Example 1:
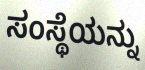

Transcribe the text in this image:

ಸಂಸ್ಥೆಯನ್ನು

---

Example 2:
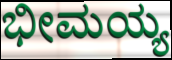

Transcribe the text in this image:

ಭೀಮಯ್ಯ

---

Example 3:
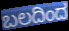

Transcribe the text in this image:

ಬಲದಿಂದ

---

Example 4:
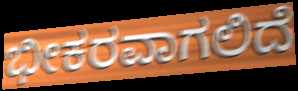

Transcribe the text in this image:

ಭೀಕರವಾಗಲಿದೆ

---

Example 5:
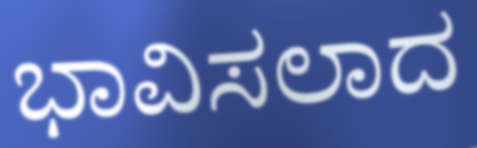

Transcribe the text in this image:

ಭಾವಿಸಲಾದ